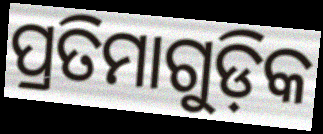
ପ୍ରତିମାଗୁଡ଼ିକ